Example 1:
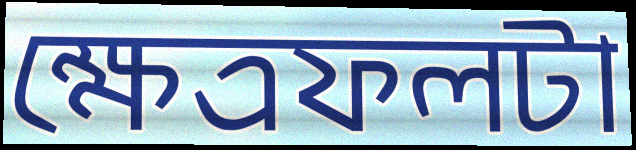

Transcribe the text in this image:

ক্ষেত্রফলটা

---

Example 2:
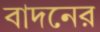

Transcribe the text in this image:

বাদনের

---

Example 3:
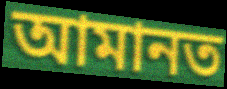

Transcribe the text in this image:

আমানত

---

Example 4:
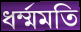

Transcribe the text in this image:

ধর্ম্মমতি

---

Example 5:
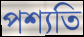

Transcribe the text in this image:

পশ্যতি